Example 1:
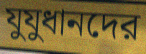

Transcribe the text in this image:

যুযুধানদের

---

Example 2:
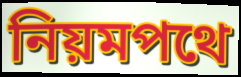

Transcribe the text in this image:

নিয়মপথে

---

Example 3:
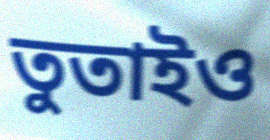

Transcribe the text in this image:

তুতাইও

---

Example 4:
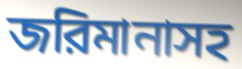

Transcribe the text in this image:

জরিমানাসহ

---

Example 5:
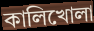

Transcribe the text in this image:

কালিখোলা